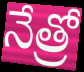
నేత్రో